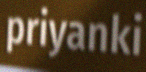
priyanki